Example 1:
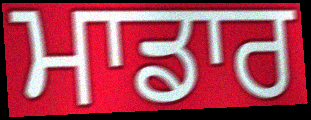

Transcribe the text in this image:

ਮਾਡਾਰ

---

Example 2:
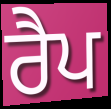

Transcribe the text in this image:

ਰੈਪ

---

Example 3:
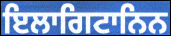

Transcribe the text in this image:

ਇਲਾਗਿਟਾਨਿਨ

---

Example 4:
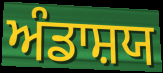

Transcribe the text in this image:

ਅੰਡਾਸ਼ਯ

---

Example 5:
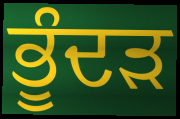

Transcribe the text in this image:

ਭੂੰਦੜ